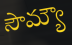
సౌమ్యౌ